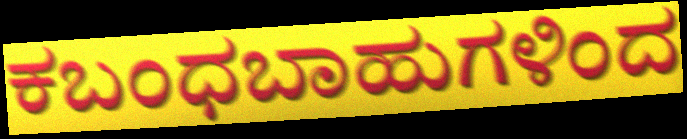
ಕಬಂಧಬಾಹುಗಳಿಂದ